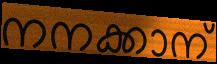
നനക്കാന്